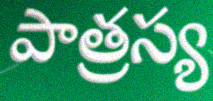
పాత్రస్య